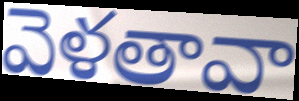
వెళతావా